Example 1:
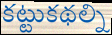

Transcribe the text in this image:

కట్టుకథల్ని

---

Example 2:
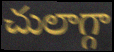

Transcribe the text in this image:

చులాగ్గా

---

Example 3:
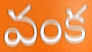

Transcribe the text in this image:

వంక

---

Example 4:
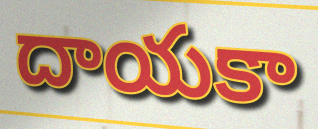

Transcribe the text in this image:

దాయకా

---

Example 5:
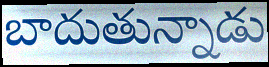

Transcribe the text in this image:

బాదుతున్నాడు